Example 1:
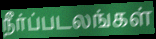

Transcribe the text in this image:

நீர்ப்படலங்கள்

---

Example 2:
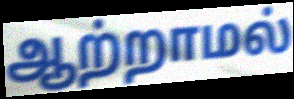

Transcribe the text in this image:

ஆற்றாமல்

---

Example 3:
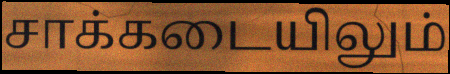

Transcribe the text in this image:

சாக்கடையிலும்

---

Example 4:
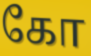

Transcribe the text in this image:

கோ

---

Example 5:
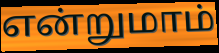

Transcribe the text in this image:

என்றுமாம்